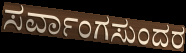
ಸರ್ವಾಂಗಸುಂದರ